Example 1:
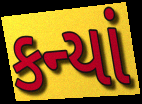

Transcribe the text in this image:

કન્યાં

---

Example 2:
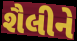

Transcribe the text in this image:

શૈલીને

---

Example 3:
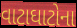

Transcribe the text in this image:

વાટાઘાટોના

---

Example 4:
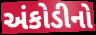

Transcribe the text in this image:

અંકોડીનો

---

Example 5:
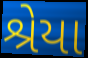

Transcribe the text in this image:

શ્રેયા